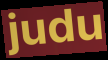
judu